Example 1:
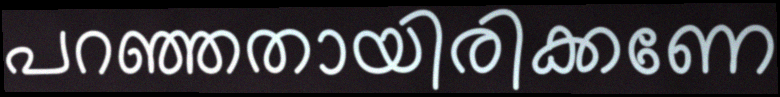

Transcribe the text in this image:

പറഞ്ഞതായിരിക്കണേ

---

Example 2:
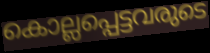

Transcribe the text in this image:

കൊല്ലപ്പെട്ടവരുടെ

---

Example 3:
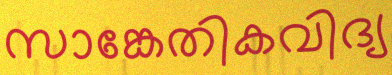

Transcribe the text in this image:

സാങ്കേതികവിദ്യ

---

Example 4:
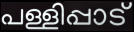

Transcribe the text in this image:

പള്ളിപ്പാട്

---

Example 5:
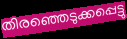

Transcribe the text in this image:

തിരഞ്ഞെടുക്കപ്പെട്ടു